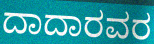
ದಾದಾರವರ